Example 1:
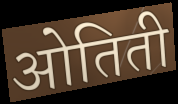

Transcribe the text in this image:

ओतिती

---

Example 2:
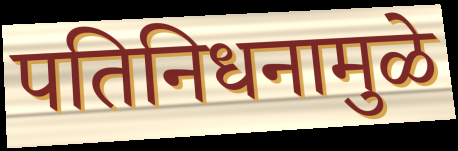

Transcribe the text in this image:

पतिनिधनामुळे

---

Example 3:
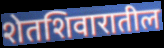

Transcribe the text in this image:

शेतशिवारातील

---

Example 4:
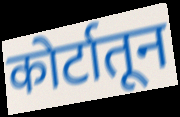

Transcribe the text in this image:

कोर्टातून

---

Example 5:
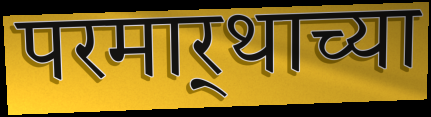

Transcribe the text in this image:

परमार्थाच्या